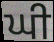
ਘੀ